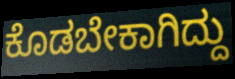
ಕೊಡಬೇಕಾಗಿದ್ದು